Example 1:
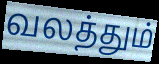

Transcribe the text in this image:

வலத்தும்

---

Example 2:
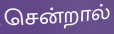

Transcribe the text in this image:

சென்றால்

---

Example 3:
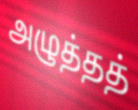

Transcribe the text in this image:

அழுத்தத்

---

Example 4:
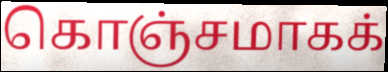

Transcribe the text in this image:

கொஞ்சமாகக்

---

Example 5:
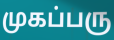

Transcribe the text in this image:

முகப்பரு